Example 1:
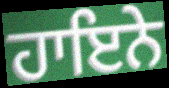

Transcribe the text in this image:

ਹਾਇਨੇ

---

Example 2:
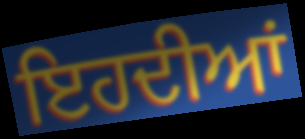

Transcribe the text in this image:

ਇਹਦੀਆਂ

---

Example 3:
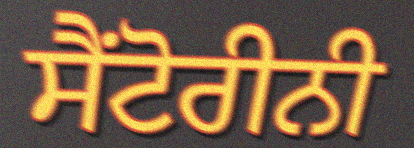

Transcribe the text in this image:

ਸੈਂਟੋਰੀਨੀ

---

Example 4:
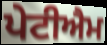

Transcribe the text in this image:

ਪੇਟੀਐਮ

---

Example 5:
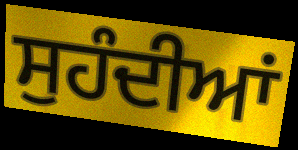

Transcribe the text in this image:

ਸੁਹੰਦੀਆਂ